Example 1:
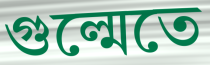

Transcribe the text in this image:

গুল্মেতে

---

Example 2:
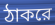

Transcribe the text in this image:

ঠাকরে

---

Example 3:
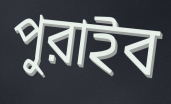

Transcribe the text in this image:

পুরাইব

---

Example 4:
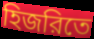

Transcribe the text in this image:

হিজরিতে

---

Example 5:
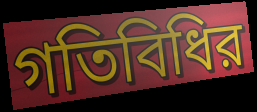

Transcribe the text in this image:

গতিবিধির